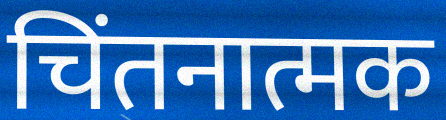
चिंतनात्मक